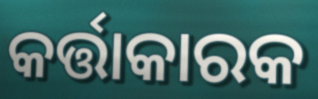
କର୍ତ୍ତାକାରକ